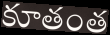
కూతంత